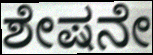
ಶೇಷನೇ